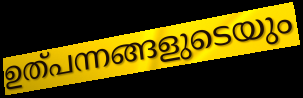
ഉത്പന്നങ്ങളുടെയും